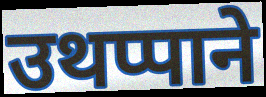
उथप्पाने